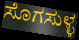
ಸೊಗಸುಳ್ಳ